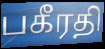
பகீரதி